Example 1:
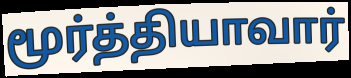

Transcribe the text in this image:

மூர்த்தியாவார்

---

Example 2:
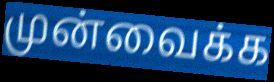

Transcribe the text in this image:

முன்வைக்க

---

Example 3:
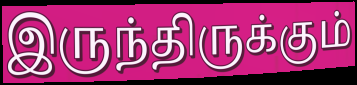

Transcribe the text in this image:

இருந்திருக்கும்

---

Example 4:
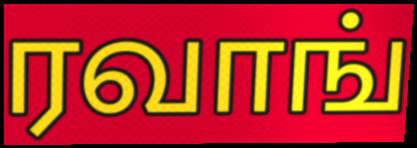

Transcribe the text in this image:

ரவாங்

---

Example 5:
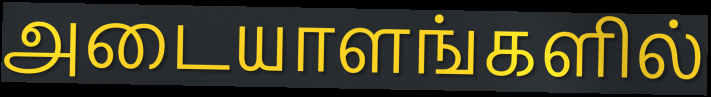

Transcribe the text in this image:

அடையாளங்களில்